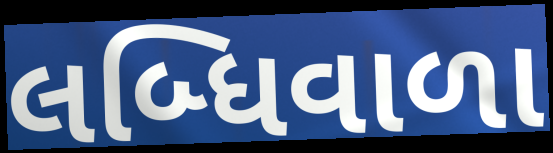
લબ્ધિવાળા